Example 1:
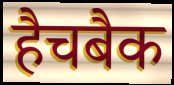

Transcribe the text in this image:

हैचबैक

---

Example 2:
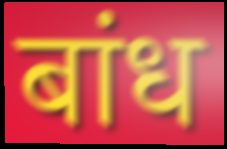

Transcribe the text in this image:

बांध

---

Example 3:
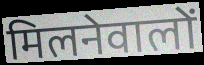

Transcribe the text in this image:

मिलनेवालों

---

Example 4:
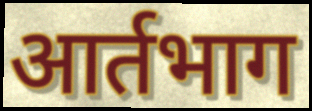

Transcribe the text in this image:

आर्तभाग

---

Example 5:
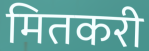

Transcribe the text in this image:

मितकरी